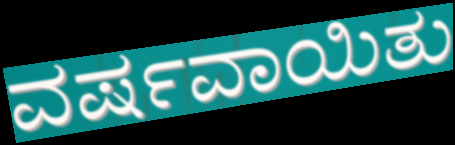
ವರ್ಷವಾಯಿತು